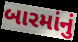
બારમાંનું